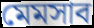
মেমসাব